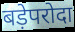
बड़ेपरोदा